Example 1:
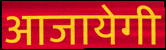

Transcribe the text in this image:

आजायेगी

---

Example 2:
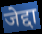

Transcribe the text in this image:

जेद्दा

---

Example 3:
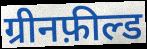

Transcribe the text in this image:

ग्रीनफ़ील्ड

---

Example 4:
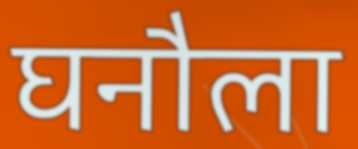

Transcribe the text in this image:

घनौला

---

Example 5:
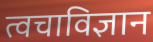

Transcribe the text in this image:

त्वचाविज्ञान